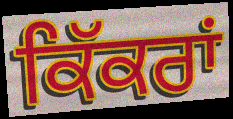
ਕਿੱਕਰਾਂ